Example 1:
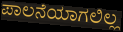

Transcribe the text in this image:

ಪಾಲನೆಯಾಗಲಿಲ್ಲ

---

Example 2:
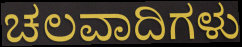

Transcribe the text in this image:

ಚಲವಾದಿಗಳು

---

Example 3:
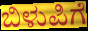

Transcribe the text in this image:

ಬಿಳುಪಿಗೆ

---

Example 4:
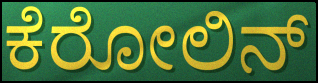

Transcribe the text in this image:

ಕೆರೋಲಿನ್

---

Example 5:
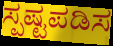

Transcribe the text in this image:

ಸ್ಪಷ್ಟಪಡಿಸ